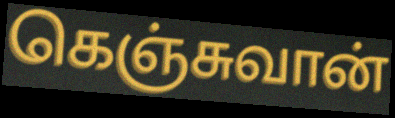
கெஞ்சுவான்